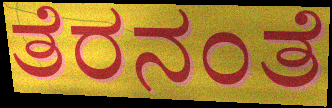
ತೆರನಂತೆ